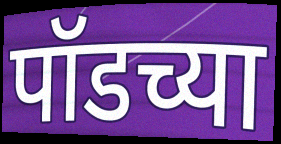
पॉडच्या